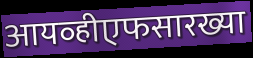
आयव्हीएफसारख्या